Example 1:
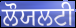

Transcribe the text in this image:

ਲੌਯਲਟੀ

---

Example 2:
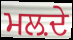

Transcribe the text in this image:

ਮਲ਼ਦੇ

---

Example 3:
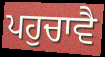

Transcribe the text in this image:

ਪਹੁਚਾਵੈ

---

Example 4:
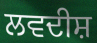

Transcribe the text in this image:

ਲਵਦੀਸ਼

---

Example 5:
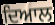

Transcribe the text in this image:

ਦਿਆਲ